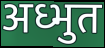
अध्भुत